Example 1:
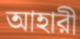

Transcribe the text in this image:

আহারী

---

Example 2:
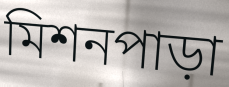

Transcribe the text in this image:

মিশনপাড়া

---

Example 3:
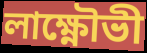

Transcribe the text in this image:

লাক্ষ্ণৌভী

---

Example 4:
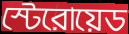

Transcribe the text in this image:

স্টেরোয়েড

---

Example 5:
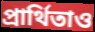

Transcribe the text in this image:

প্রার্থিতাও